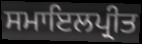
ਸਮਾਇਲਪ੍ਰੀਤ